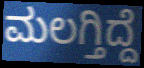
ಮಲಗ್ತಿದ್ದೆ